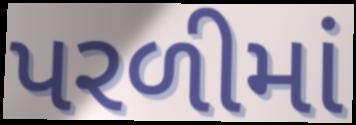
પરળીમાં